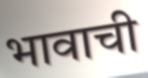
भावाची